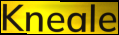
Kneale